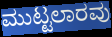
ಮುಟ್ಟಲಾರವು